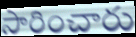
సారించారు